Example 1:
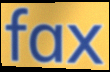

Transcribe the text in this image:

fax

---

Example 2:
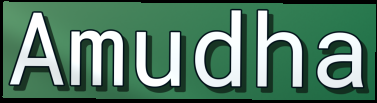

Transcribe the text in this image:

Amudha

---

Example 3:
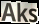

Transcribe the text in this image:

Aks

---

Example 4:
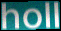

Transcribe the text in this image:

holl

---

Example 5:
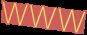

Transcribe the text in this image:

WWW